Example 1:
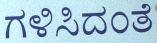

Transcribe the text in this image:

ಗಳಿಸಿದಂತೆ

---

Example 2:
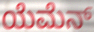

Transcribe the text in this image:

ಯೆಮೆನ್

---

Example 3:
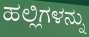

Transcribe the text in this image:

ಹಲ್ಲಿಗಳನ್ನು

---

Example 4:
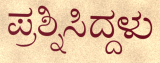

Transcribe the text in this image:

ಪ್ರಶ್ನಿಸಿದ್ದಳು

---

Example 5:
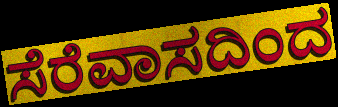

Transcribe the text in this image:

ಸೆರೆವಾಸದಿಂದ